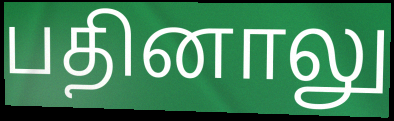
பதினாலு